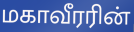
மகாவீரரின்